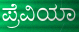
ಪ್ರೆವಿಯಾ